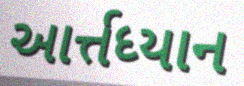
આર્ત્તધ્યાન